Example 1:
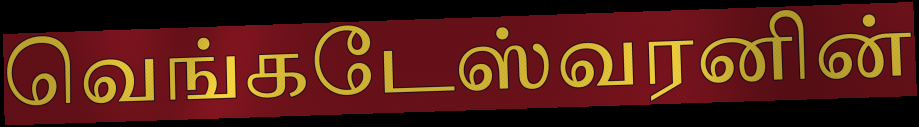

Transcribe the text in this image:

வெங்கடேஸ்வரனின்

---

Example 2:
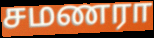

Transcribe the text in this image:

சமணரா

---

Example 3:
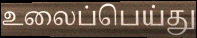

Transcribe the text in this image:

உலைப்பெய்து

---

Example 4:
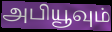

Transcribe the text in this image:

அபியூவும்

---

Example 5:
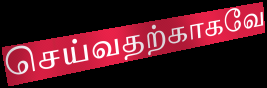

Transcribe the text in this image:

செய்வதற்காகவே